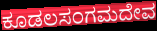
ಕೂಡಲಸಂಗಮದೇವ